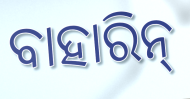
ବାହାରିନ୍